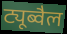
ट्यूब्वैल